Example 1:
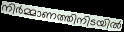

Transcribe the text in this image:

നിർമ്മാണത്തിനിടയിൽ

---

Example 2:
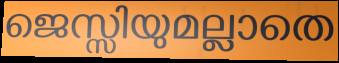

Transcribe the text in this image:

ജെസ്സിയുമല്ലാതെ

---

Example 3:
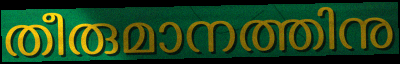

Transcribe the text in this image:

തീരുമാനത്തിനു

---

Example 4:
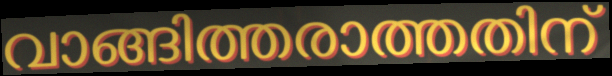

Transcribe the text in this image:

വാങ്ങിത്തരാത്തതിന്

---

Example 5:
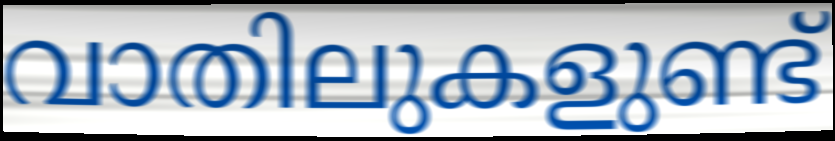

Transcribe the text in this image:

വാതിലുകളുണ്ട്